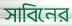
সাবিনের